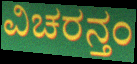
ವಿಚರನ್ತಂ